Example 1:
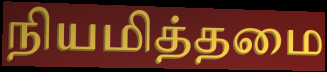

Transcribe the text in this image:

நியமித்தமை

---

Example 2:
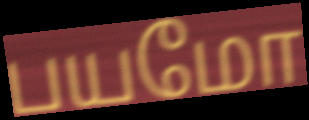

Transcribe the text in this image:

பயமோ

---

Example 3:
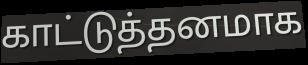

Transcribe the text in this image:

காட்டுத்தனமாக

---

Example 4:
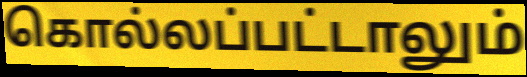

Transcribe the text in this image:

கொல்லப்பட்டாலும்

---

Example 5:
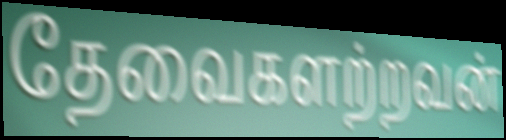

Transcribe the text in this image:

தேவைகளற்றவன்